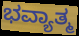
ಭವ್ಯಾತ್ಮ